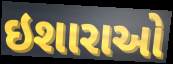
ઇશારાઓ